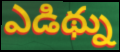
ఎడిథ్ను